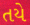
તયે